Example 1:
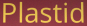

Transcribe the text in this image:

Plastid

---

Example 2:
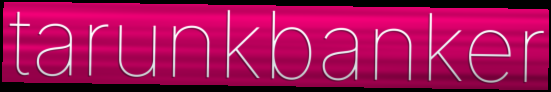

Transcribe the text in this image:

tarunkbanker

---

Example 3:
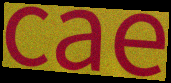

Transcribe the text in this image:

cae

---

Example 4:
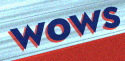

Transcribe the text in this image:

wows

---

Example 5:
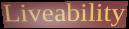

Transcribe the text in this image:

Liveability